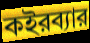
কইরব্যার